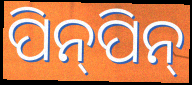
ପିନ୍‍ପିନ୍